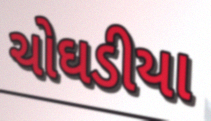
ચોઘડીયા